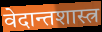
वेदान्तशास्त्र